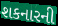
શકનારની